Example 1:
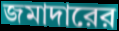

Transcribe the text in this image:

জমাদারের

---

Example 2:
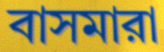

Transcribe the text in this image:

বাসমারা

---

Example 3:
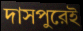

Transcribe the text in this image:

দাসপুরেই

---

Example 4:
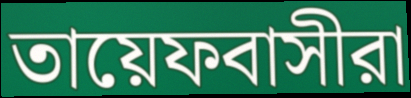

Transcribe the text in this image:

তায়েফবাসীরা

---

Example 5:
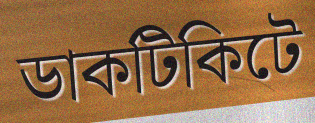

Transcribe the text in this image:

ডাকটিকিটে